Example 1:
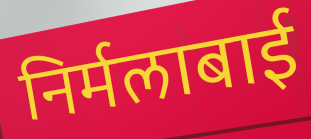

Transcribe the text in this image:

निर्मलाबाई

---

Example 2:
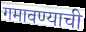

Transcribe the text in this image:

गमावण्याची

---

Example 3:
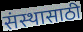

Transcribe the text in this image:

संस्थासाठी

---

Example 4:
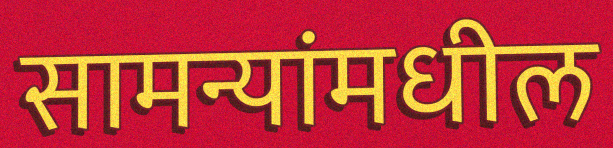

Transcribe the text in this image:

सामन्यांमधील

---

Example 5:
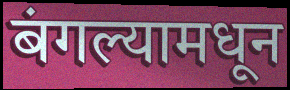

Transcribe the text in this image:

बंगल्यामधून